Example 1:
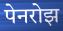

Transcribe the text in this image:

पेनरोझ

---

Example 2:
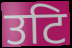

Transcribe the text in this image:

उटि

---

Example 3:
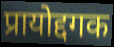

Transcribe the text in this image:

प्रायोद्दगक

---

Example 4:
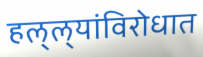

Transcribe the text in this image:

हल्ल्यांविरोधात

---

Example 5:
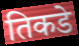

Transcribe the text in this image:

तिकडे